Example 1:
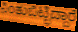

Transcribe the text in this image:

ನಿಂತುಬಿಟ್ಟಿದ್ದಾರೆ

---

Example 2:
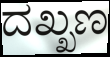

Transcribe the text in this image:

ದಖ್ಖಣ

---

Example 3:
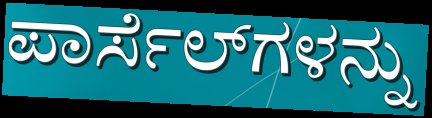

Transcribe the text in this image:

ಪಾರ್ಸೆಲ್‌ಗಳನ್ನು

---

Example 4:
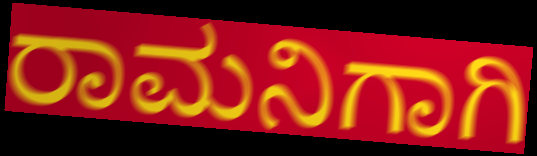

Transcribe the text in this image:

ರಾಮನಿಗಾಗಿ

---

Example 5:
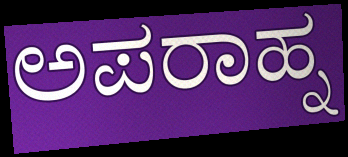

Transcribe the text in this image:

ಅಪರಾಹ್ನ